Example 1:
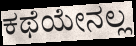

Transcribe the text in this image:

ಕಥೆಯೇನಲ್ಲ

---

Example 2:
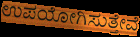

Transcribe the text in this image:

ಉಪಯೋಗಿಸುತ್ತೇವೆ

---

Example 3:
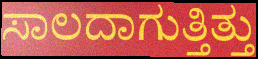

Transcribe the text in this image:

ಸಾಲದಾಗುತ್ತಿತ್ತು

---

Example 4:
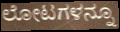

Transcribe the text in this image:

ಲೋಟಗಳನ್ನೂ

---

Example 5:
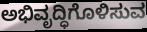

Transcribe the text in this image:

ಅಭಿವೃದ್ಧಿಗೊಳಿಸುವ